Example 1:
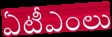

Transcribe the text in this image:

ఏటీఎంలు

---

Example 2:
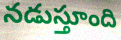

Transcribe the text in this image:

నడుస్తూంది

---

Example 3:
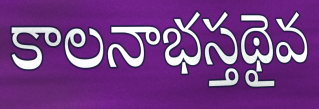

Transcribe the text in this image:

కాలనాభస్తథైవ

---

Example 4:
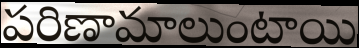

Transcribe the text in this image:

పరిణామాలుంటాయి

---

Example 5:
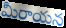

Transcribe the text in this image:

మీరాయన